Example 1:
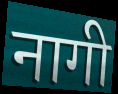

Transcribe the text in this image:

नागी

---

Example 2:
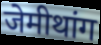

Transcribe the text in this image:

जेमीथांग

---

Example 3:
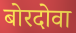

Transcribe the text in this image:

बोरदोवा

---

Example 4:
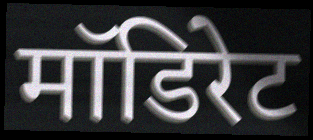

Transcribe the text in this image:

मॉडिरेट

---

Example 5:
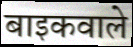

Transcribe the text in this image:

बाइकवाले